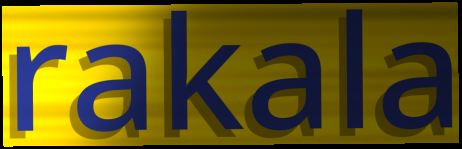
rakala